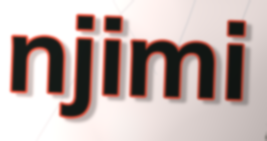
njimi